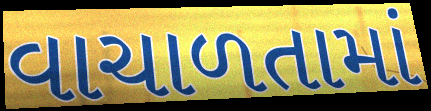
વાચાળતામાં